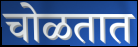
चोळतात